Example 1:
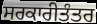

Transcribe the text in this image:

ਸਰਕਾਰੀਤੰਤਰ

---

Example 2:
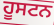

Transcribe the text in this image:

ਹੂਸਟਨ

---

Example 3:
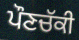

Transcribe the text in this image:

ਪੌਣਚੱਕੀ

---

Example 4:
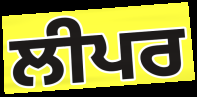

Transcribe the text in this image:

ਲੀਪਰ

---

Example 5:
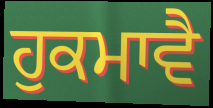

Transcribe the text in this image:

ਹੁਕਮਾਵੈ